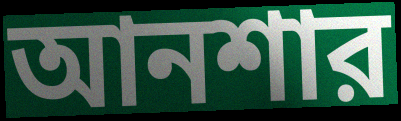
আনশার